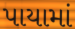
પાયામાં